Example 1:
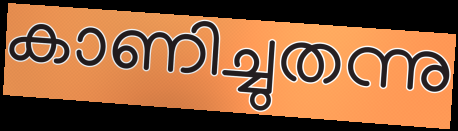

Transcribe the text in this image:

കാണിച്ചുതന്നു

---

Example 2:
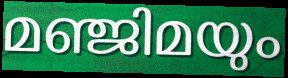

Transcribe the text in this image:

മഞ്ജിമയും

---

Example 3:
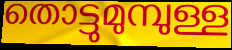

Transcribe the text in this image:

തൊട്ടുമുമ്പുള്ള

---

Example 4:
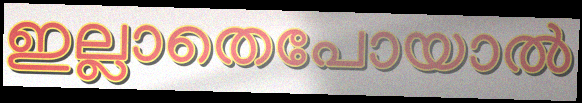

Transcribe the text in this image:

ഇല്ലാതെപോയാൽ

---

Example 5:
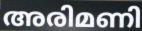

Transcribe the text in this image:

അരിമണി